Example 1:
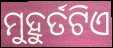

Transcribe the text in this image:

ମୁହୁର୍ତଟିଏ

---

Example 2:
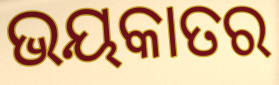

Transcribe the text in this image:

ଭୟକାତର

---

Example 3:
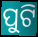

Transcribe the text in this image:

ପୁଟି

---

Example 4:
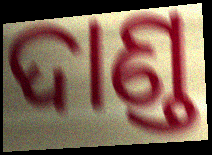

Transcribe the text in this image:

ଦାଣ୍ଡ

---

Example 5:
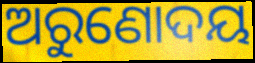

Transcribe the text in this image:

ଅରୁଣୋଦୟ